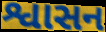
શ્વાસન